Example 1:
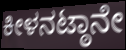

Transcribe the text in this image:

ಕೀಳನಟ್ಠಾನೇ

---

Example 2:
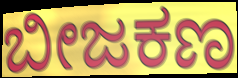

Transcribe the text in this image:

ಬೀಜಕಣ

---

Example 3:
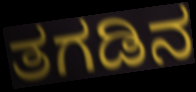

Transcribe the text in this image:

ತಗಡಿನ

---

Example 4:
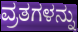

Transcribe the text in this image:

ವ್ರತಗಳನ್ನು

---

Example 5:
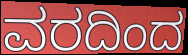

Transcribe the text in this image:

ವರದಿಂದ